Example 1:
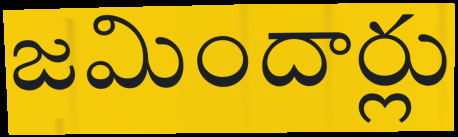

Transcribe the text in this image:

జమిందార్లు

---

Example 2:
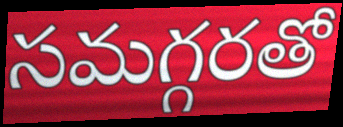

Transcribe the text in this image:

సమగ్గరతో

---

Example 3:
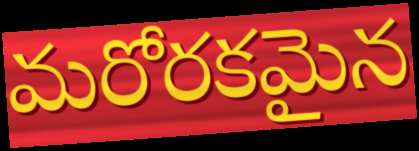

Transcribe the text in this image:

మరోరకమైన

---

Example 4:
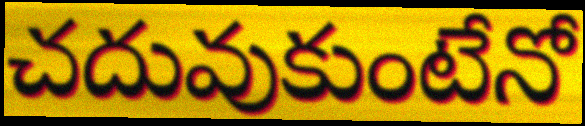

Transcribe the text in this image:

చదువుకుంటేనో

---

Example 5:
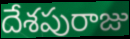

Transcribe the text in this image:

దేశపురాజు